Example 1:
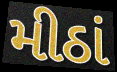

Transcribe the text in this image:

મીઠાં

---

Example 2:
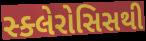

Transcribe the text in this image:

સ્ક્લેરોસિસથી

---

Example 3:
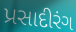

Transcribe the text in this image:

પ્રસાદીરંગ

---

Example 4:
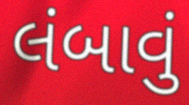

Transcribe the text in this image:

લંબાવું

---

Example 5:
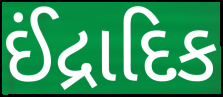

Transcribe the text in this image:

ઈંદ્રાદિક